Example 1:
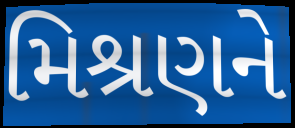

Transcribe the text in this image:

મિશ્રણને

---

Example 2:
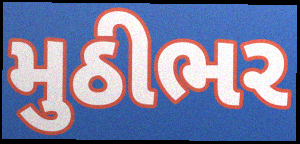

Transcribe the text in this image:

મુઠીભર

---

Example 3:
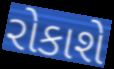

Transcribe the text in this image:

રોકાશે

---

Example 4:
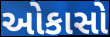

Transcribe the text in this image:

ઓકાસો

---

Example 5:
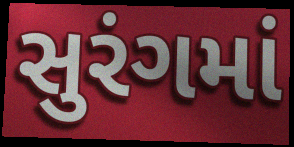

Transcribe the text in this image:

સુરંગમાં